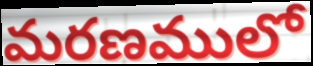
మరణములో